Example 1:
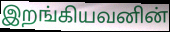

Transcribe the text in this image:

இறங்கியவனின்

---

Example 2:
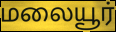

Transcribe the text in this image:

மலையூர்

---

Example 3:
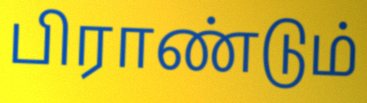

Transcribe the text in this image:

பிராண்டும்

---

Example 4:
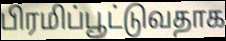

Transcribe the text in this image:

பிரமிப்பூட்டுவதாக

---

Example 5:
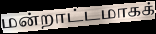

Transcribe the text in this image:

மன்றாட்டமாகக்